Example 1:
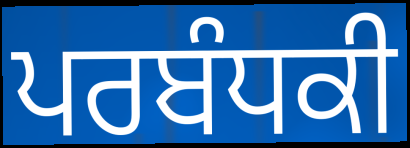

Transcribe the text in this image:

ਪਰਬੰਧਕੀ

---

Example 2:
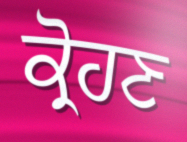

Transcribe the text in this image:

ਕ੍ਰੋਹਣ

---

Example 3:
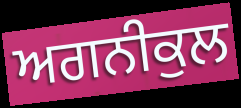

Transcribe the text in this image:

ਅਗਨੀਕੁਲ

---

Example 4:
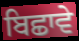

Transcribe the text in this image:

ਬਿਛਾਵੇ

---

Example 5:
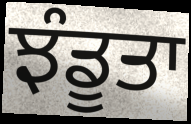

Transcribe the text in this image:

ਝੰਡੂਤਾ